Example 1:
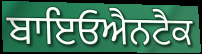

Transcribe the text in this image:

ਬਾਇਓਐਨਟੈਕ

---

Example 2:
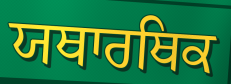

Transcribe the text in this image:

ਯਥਾਰਥਿਕ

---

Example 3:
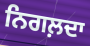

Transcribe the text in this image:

ਨਿਗਲ਼ਦਾ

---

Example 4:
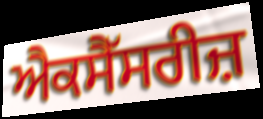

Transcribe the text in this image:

ਐਕਸੈੱਸਰੀਜ਼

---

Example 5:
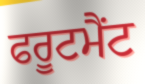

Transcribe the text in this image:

ਫਰੂਟਮੈਂਟ